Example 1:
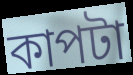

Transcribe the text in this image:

কাপটা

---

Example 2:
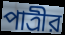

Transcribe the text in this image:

পাত্রীর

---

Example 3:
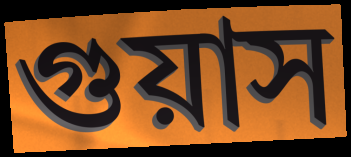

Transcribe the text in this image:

গুয়াস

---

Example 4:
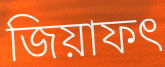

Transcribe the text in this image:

জিয়াফৎ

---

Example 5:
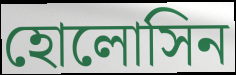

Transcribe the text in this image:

হোলোসিন